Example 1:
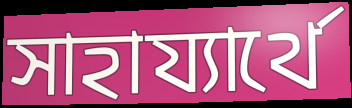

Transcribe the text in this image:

সাহায্যার্থে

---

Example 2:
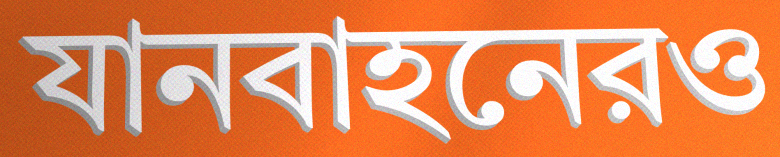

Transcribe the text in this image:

যানবাহনেরও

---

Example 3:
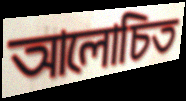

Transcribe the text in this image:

আলোচিত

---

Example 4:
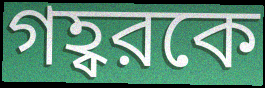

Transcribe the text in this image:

গহ্বরকে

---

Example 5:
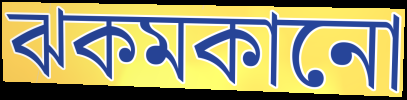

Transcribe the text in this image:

ঝকমকানো